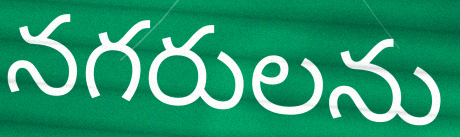
నగరులను